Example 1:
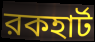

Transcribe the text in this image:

রকহার্ট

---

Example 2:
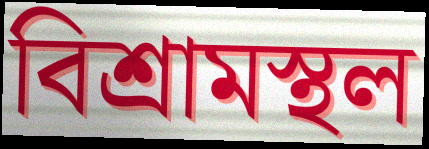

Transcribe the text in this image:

বিশ্রামস্থল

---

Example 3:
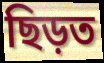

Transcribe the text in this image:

ছিড়ত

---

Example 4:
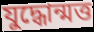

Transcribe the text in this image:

যুদ্ধোন্মত্ত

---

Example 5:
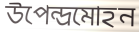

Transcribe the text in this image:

উপেন্দ্রমোহন